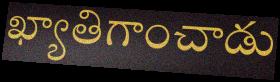
ఖ్యాతిగాంచాడు